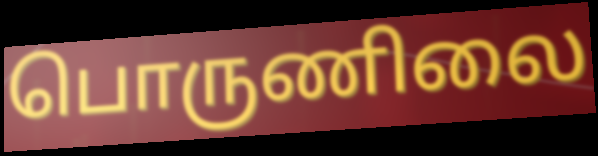
பொருணிலை